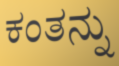
ಕಂತನ್ನು